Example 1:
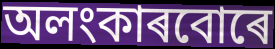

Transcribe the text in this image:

অলংকাৰবোৰে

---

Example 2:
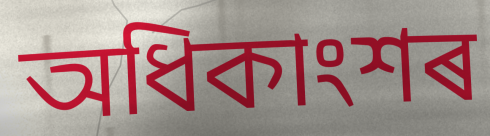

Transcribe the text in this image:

অধিকাংশৰ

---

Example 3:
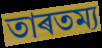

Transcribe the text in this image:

তাৰতম্য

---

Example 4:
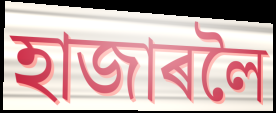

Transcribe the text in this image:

হাজাৰলৈ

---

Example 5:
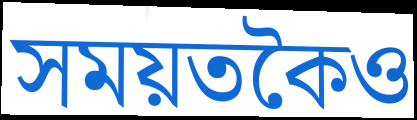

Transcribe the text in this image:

সময়তকৈও